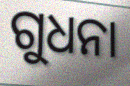
ଗୁଧନା